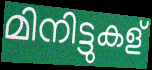
മിനിട്ടുകള്